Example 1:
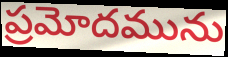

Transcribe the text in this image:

ప్రమోదమును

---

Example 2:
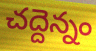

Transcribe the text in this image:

చద్దెన్నం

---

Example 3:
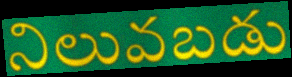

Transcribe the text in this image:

నిలువబడు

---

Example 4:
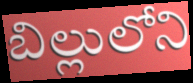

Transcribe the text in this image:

బిల్లులోని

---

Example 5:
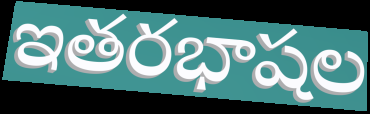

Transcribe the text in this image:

ఇతరభాషల